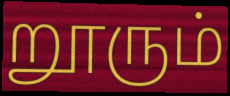
றூரும்